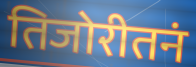
तिजोरीतनं